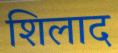
शिलाद